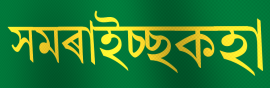
সমৰাইচ্ছকহা